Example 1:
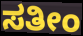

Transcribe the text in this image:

ಸತೀಂ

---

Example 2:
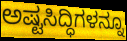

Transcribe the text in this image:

ಅಷ್ಟಸಿದ್ಧಿಗಳನ್ನೂ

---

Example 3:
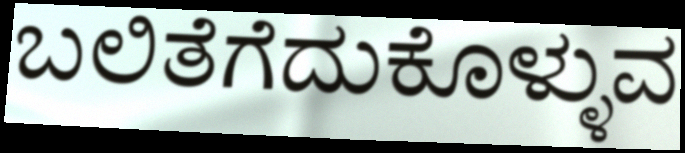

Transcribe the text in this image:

ಬಲಿತೆಗೆದುಕೊಳ್ಳುವ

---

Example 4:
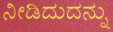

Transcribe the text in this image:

ನೀಡಿದುದನ್ನು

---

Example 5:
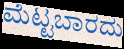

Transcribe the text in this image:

ಮೆಟ್ಟಬಾರದು